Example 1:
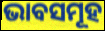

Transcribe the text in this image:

ଭାବସମୂହ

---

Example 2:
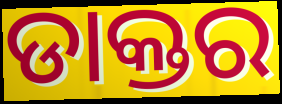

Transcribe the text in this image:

ଡାକ୍ତର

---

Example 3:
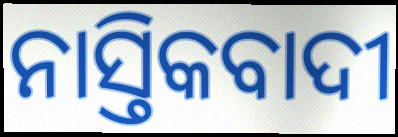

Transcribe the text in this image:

ନାସ୍ତିକବାଦୀ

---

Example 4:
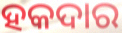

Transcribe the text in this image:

ହକଦାର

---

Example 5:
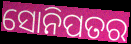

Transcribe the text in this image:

ସୋନିପତର